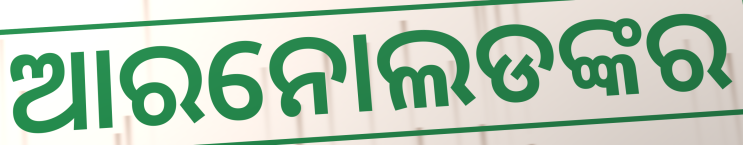
ଆରନୋଲଡଙ୍କର